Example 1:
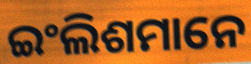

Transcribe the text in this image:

ଇଂଲିଶମାନେ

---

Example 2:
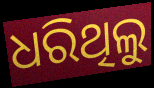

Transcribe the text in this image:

ଧରିଥିଲୁ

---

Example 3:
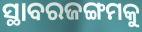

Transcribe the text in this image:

ସ୍ଥାବରଜଙ୍ଗମକୁ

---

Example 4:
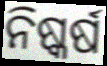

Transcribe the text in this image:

ନିଷ୍କର୍ଷ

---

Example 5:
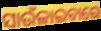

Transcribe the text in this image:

ସାଉଁଳାଇବାରେ